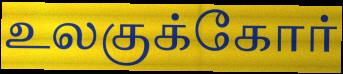
உலகுக்கோர்